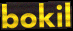
bokil